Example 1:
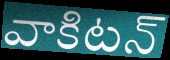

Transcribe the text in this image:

వాకిటన్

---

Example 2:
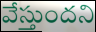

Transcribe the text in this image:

వేస్తుందని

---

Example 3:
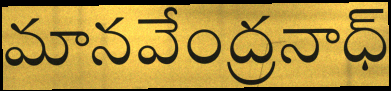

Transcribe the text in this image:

మానవేంద్రనాధ్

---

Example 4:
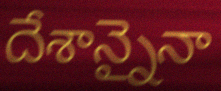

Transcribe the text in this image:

దేశాన్నైనా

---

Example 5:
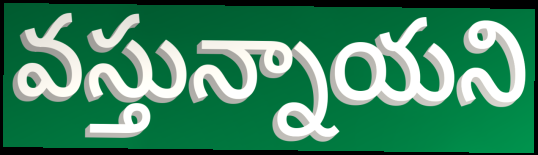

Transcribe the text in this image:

వస్తున్నాయని